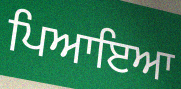
ਪਿਆਇਆ